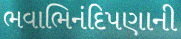
ભવાભિનંદિપણાની